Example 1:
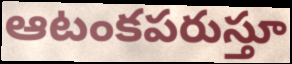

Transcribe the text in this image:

ఆటంకపరుస్తూ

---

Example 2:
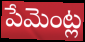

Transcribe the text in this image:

పేమెంట్ల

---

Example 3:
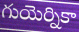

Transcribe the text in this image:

గుయెర్నికా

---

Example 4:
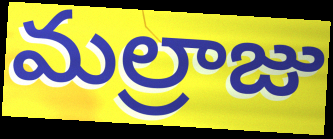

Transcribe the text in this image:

మల్రాజు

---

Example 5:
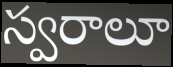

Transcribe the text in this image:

స్వరాలూ